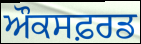
ਔਕਸਫ਼ਰਡ